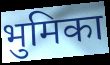
भुमिका